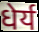
धेर्य